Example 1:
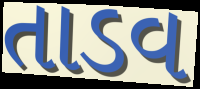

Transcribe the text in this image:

તાડવ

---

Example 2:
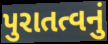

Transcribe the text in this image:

પુરાતત્વનું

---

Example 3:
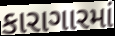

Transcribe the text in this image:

કારાગારમાં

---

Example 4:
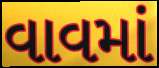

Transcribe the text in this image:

વાવમાં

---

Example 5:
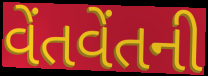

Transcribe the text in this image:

વેંતવેંતની